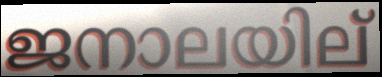
ജനാലയില്